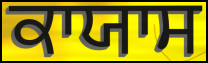
ਕਾਯਾਸ